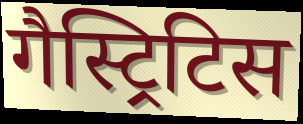
गैस्ट्रिटिस